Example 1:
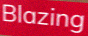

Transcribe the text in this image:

Blazing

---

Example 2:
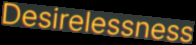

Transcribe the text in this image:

Desirelessness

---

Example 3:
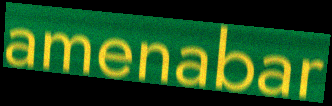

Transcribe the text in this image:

amenabar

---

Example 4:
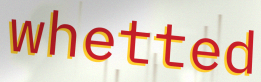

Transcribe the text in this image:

whetted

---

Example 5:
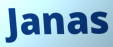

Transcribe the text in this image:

Janas